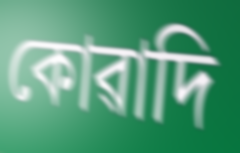
কোৱাদি